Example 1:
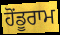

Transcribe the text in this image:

ਹੋਂਡੂਰਾਮ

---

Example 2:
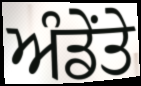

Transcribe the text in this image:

ਅੰਡੇਂਤੇ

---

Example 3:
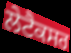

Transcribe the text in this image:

ਲੇਟੈਕਸਰ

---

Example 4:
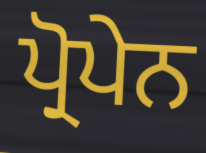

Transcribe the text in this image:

ਪ੍ਰੋਪੇਨ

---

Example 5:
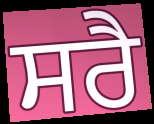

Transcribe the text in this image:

ਸਰੈ